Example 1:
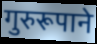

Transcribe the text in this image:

गुरुरूपाने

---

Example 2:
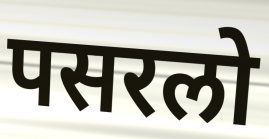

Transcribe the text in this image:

पसरलो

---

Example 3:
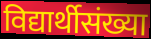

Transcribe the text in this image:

विद्यार्थीसंख्या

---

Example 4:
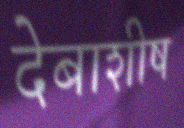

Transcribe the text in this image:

देबाशीष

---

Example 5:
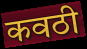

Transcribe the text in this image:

कवठी